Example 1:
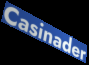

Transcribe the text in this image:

Casinader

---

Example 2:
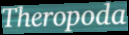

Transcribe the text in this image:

Theropoda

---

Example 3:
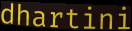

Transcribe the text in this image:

dhartini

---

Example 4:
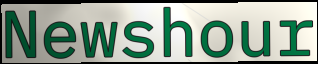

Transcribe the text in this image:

Newshour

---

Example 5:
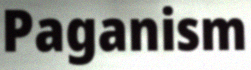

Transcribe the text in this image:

Paganism